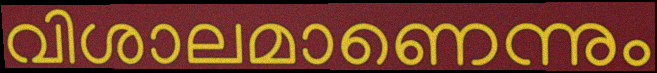
വിശാലമാണെന്നും